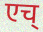
एच्